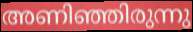
അണിഞ്ഞിരുന്നു